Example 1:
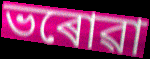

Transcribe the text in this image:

ভৰোৱা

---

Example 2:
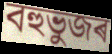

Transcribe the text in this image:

বহুভুজৰ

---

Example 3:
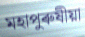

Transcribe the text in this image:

মহাপুৰুষীয়া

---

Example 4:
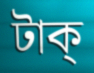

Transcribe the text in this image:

টাক্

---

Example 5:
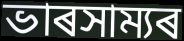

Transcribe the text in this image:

ভাৰসাম্যৰ